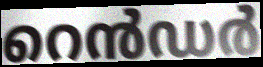
റെൻഡർ